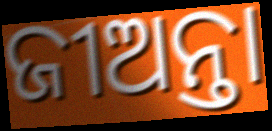
ଜୀଅନ୍ତା